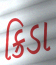
ક્રિડા